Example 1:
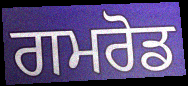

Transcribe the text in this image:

ਗਮਰੋਡ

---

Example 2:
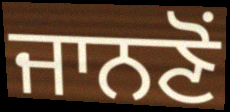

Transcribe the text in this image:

ਜਾਨਣੋਂ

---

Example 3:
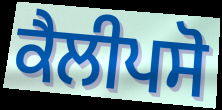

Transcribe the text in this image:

ਕੈਲੀਪਸੋ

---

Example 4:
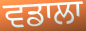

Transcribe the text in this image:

ਵਡਾਲਾ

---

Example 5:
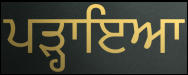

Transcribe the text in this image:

ਪੜ੍ਹਾਇਆ